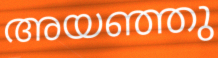
അയഞ്ഞു